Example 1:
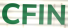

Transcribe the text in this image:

CFIN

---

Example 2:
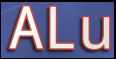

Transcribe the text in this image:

ALu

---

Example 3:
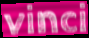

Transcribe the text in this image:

vinci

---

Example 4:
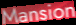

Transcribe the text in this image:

Mansion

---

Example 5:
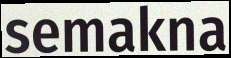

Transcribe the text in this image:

semakna